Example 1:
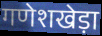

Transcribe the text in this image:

गणेशखेड़ा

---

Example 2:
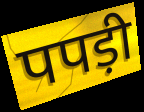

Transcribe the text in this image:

पपड़ी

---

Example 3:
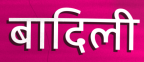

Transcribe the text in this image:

बादिली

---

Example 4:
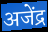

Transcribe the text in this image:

अजेंद्र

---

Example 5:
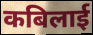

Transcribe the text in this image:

कबिलाई